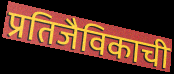
प्रतिजैविकाची